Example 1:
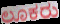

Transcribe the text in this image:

ಲೂಕರು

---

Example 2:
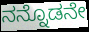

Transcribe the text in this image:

ನನ್ನೊಡನೇ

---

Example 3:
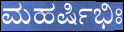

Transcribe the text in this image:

ಮಹರ್ಷಿಭಿಃ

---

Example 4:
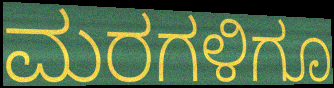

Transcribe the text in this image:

ಮರಗಳಿಗೂ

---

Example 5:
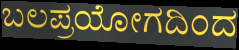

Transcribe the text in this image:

ಬಲಪ್ರಯೋಗದಿಂದ